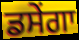
ਡਸੇਂਗਾ